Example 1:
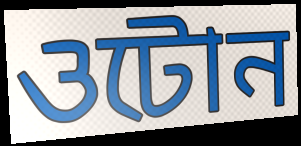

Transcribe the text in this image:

ওটোন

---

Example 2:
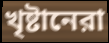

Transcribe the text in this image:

খৃষ্টানেরা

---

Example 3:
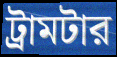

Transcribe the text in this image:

ট্রামটার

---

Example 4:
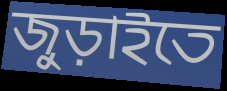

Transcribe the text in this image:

জুড়াইতে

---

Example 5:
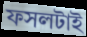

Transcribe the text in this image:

ফসলটাই